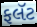
ફલૅટ